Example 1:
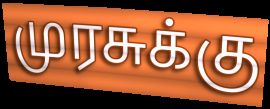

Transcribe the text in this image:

முரசுக்கு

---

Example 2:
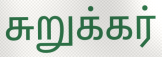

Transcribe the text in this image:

சுறுக்கர்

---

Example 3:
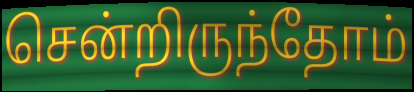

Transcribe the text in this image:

சென்றிருந்தோம்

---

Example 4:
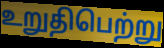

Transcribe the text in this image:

உறுதிபெற்று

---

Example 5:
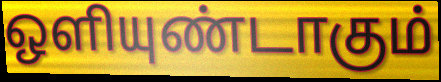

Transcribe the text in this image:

ஒளியுண்டாகும்